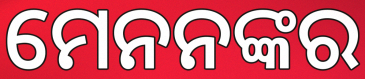
ମେନନଙ୍କର